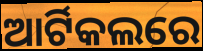
ଆର୍ଟିକଲରେ